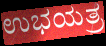
ಉಭಯತ್ರ